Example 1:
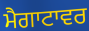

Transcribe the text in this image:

ਮੈਗਾਟਾਵਰ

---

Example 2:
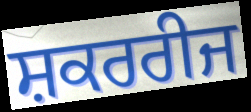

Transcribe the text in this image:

ਸ਼ਕਰਰੀਜ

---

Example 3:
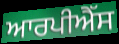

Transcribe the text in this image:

ਆਰਪੀਐੱਸ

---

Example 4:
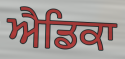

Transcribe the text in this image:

ਐਡਿਕਾ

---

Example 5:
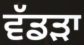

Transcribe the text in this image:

ਵੱਡਡ਼ਾ